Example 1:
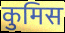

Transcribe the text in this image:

कुमिस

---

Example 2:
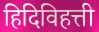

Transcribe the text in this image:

हिदिविहत्ती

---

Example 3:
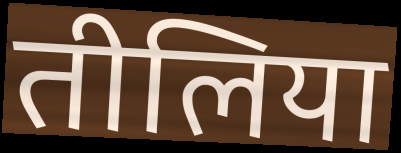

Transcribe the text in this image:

तीलिया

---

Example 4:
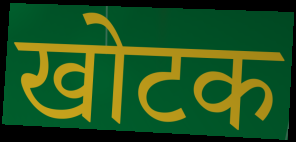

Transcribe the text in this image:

खोटक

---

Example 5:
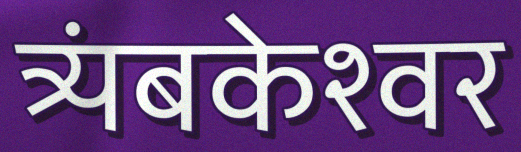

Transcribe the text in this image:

त्र्यंबकेश्वर